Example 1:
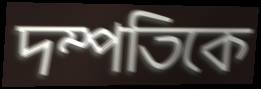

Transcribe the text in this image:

দম্পতিকে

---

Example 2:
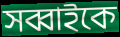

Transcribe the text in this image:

সব্বাইকে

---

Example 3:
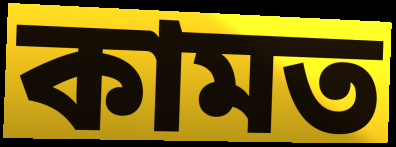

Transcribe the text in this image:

কামত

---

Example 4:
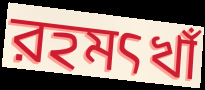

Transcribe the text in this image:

রহমৎখাঁ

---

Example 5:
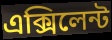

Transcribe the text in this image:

এক্সিলেন্ট